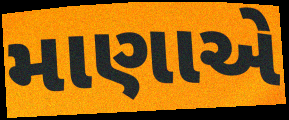
માણાએ